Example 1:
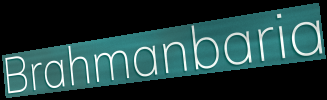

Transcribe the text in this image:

Brahmanbaria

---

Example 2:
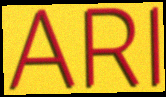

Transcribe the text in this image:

ARI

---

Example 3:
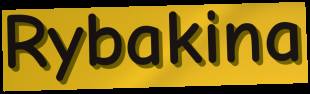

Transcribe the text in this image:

Rybakina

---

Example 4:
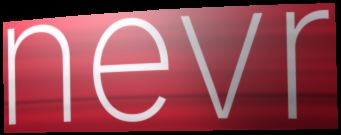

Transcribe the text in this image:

nevr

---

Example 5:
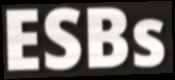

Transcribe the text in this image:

ESBs